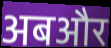
अबऔर